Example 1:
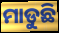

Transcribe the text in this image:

ମାଡୁଛି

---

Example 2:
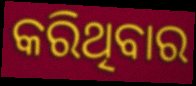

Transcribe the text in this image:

କରିଥିବାର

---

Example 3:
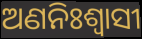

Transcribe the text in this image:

ଅଣନିଃଶ୍ଵାସୀ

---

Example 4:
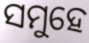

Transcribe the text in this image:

ସମୁହେ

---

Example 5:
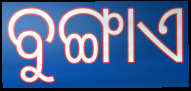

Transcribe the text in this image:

ବୁଙ୍ଗାଏ